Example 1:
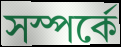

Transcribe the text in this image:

সস্পর্কে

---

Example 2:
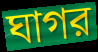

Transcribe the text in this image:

ঘাগর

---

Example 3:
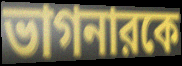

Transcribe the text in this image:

ভাগনারকে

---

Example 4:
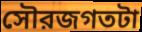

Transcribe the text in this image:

সৌরজগতটা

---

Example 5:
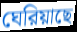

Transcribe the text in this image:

ঘেরিয়াছে